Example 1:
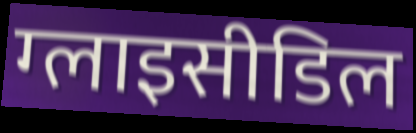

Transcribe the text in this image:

ग्लाइसीडिल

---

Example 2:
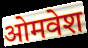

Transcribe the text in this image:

ओमवेश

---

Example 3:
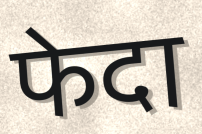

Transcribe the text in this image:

फेदा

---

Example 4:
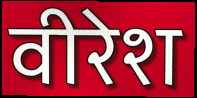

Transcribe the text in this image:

वीरेश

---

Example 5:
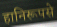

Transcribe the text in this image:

हानिरूपसे